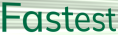
Fastest